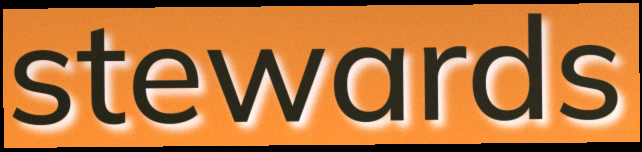
stewards